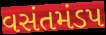
વસંતમંડપ